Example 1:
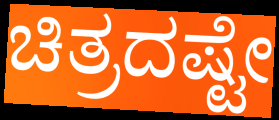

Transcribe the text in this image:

ಚಿತ್ರದಷ್ಟೇ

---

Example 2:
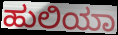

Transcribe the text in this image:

ಹುಲಿಯಾ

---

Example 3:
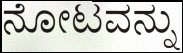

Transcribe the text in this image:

ನೋಟವನ್ನು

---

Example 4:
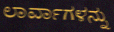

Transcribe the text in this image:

ಲಾರ್ವಾಗಳನ್ನು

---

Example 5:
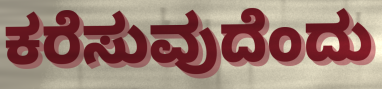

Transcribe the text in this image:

ಕರೆಸುವುದೆಂದು